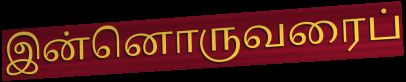
இன்னொருவரைப்